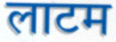
लाटम